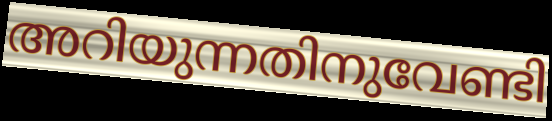
അറിയുന്നതിനുവേണ്ടി